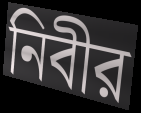
নিবীর